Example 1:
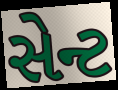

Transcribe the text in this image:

સેન્ટ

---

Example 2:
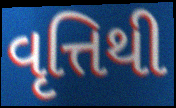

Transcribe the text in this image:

વૃત્તિથી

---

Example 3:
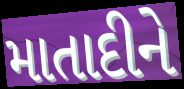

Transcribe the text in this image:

માતાદીને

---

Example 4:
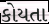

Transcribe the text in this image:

કોયતા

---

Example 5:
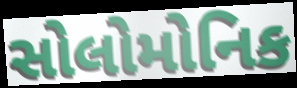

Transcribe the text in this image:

સોલોમોનિક